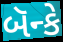
બૅન્કે